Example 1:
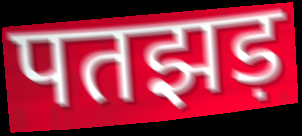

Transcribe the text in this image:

पतझड़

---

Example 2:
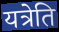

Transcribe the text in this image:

यत्रेति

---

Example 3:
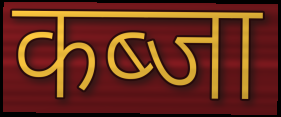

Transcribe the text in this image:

कब्जा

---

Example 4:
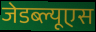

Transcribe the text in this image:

जेडब्ल्यूएस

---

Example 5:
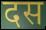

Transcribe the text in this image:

दस